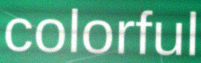
colorful